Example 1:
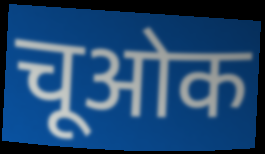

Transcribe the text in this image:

चूओक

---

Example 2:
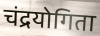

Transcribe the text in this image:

चंद्रयोगिता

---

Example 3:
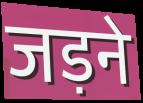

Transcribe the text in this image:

जड़ने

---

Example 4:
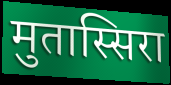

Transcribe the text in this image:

मुतास्सिरा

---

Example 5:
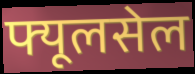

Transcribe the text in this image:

फ्यूलसेल